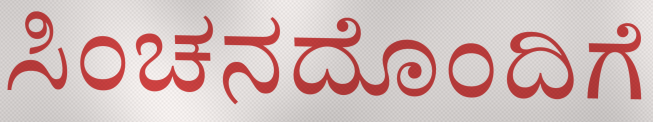
ಸಿಂಚನದೊಂದಿಗೆ